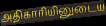
அதிகாரியினுடைய